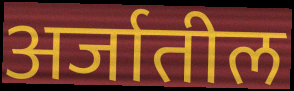
अर्जातील